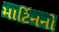
માર્ટિનનો